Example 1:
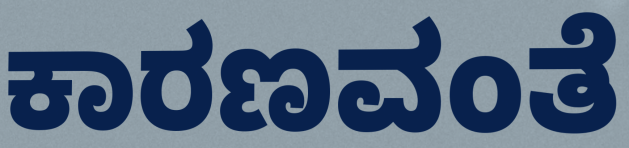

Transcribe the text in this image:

ಕಾರಣವಂತೆ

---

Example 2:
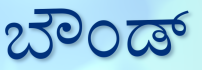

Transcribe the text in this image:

ಬೌಂಡ್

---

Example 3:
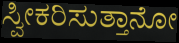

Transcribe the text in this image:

ಸ್ವೀಕರಿಸುತ್ತಾನೋ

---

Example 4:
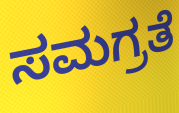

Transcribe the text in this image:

ಸಮಗ್ರತೆ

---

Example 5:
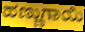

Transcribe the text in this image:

ಹಣ್ಣುಗಾಯಿ